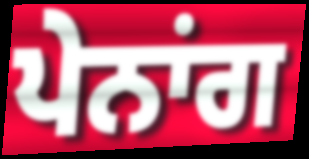
ਪੇਨਾਂਗ